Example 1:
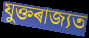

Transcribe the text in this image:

যুক্তৰাজ্যত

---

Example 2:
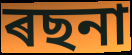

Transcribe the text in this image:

ৰছনা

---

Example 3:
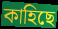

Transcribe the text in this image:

কাহিছে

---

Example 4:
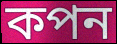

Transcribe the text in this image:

কপন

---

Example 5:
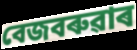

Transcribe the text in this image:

বেজবৰুৱাৰ